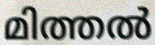
മിത്തൽ